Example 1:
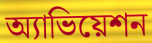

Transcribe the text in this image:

অ্যাভিয়েশন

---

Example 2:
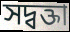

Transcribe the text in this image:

সদ্বক্তা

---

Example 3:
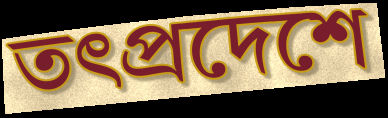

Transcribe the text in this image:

তৎপ্রদেশে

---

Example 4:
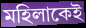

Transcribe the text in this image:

মহিলাকেই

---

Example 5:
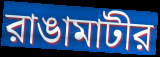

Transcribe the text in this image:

রাঙামাটীর